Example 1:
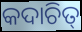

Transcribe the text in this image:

କଦାଚିତ୍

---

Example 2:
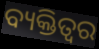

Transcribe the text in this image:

ବ୍ୟକ୍ତିତ୍ବର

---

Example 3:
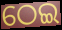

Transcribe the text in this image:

ଠେଇ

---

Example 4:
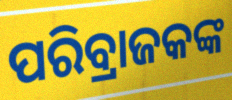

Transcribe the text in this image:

ପରିବ୍ରାଜକଙ୍କ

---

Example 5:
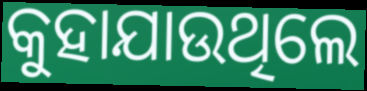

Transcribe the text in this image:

କୁହାଯାଉଥିଲେ